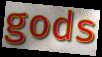
gods